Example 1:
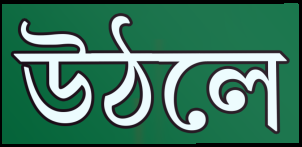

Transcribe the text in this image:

উঠলে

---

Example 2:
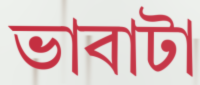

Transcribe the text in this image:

ভাবাটা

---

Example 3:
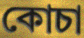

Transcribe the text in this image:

কোচা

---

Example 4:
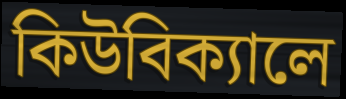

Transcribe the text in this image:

কিউবিক্যালে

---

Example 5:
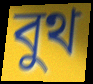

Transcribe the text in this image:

বুথ